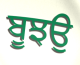
ਬੂਝਉ